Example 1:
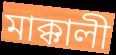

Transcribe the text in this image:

মাক্কালী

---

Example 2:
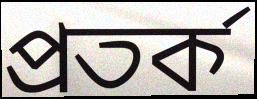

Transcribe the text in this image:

প্রতর্ক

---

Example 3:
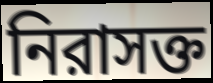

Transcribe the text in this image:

নিরাসক্ত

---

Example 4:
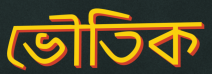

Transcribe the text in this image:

ভৌতিক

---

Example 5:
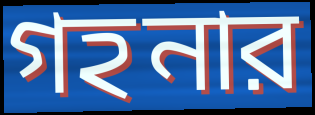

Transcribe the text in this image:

গহনার